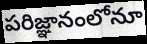
పరిజ్ఞానంలోనూ